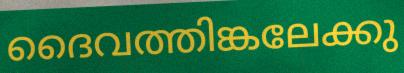
ദൈവത്തിങ്കലേക്കു